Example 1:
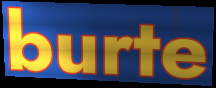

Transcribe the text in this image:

burte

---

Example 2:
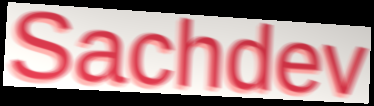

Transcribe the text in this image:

Sachdev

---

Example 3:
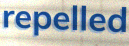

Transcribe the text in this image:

repelled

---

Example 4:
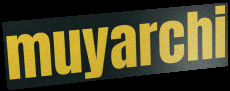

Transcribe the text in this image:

muyarchi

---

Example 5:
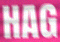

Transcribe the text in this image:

HAG